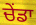
ਚੇਂਡਾ